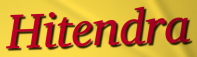
Hitendra